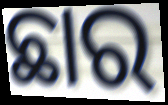
ଛାର